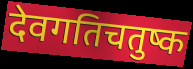
देवगतिचतुष्क